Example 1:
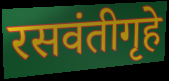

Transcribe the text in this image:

रसवंतीगृहे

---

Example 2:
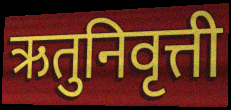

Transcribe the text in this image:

ऋतुनिवृत्ती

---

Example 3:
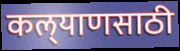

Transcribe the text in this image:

कल्याणसाठी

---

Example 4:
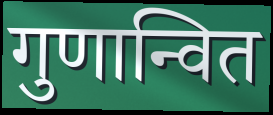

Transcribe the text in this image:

गुणान्वित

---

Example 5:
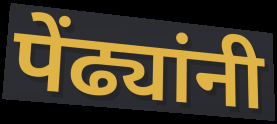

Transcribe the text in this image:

पेंढ्यांनी